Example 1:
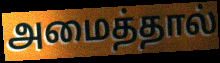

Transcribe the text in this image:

அமைத்தால்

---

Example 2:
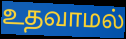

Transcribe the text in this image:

உதவாமல்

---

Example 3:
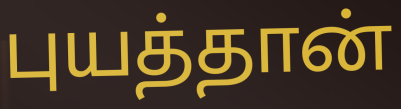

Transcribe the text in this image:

புயத்தான்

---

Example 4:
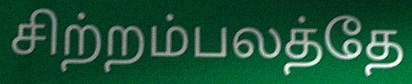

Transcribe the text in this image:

சிற்றம்பலத்தே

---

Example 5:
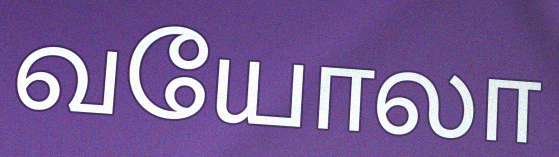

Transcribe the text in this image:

வயோலா